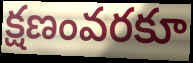
క్షణంవరకూ